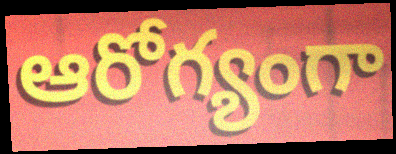
ఆరోగ్యంగా